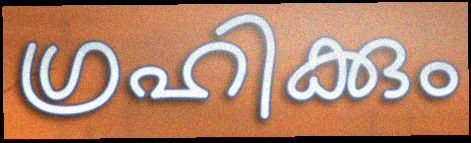
ഗ്രഹിക്കും